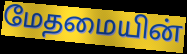
மேதமையின்